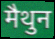
मैथुन